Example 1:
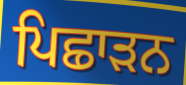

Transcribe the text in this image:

ਪਿਛਾੜਨ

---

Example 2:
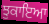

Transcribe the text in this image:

ਝੁਕਾਇਆ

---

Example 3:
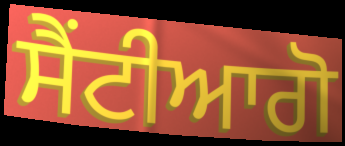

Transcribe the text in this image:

ਸੈਂਟੀਆਗੋ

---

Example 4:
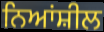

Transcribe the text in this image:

ਨਿਆਂਸ਼ੀਲ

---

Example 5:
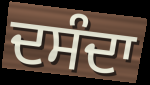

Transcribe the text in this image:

ਦਸੰਦਾ